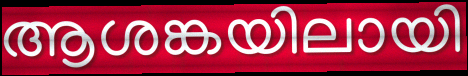
ആശങ്കയിലായി